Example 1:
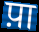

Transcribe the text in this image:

प़ा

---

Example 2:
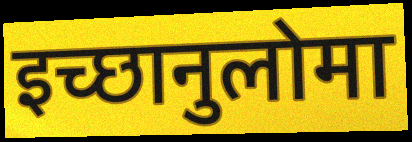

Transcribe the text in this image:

इच्छानुलोमा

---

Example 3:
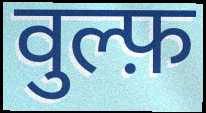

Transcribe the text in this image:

वुल्फ़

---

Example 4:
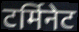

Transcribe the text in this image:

टर्मिनेट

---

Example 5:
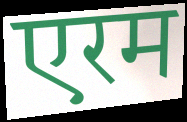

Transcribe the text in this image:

एरम